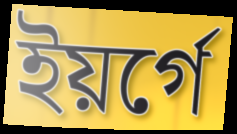
ইয়র্গে